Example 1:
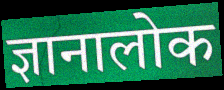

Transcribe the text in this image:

ज्ञानालोक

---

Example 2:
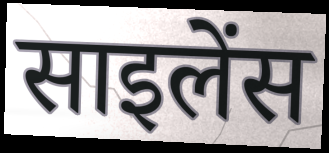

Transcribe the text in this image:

साइलेंस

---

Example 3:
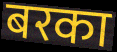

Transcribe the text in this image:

बरका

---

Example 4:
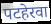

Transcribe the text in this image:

पटहेरवा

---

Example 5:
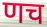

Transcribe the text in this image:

णच